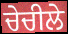
ਚੇਚੀਲੇ